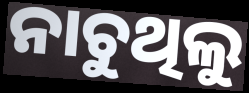
ନାଚୁଥିଲୁ